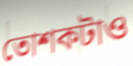
তোশকটাও